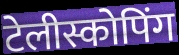
टेलीस्कोपिंग